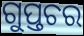
ଗୁପ୍ତଚର